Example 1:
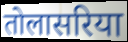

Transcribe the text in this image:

तोलासरिया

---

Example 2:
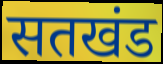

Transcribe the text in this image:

सतखंड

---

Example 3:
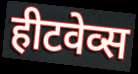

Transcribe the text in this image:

हीटवेव्स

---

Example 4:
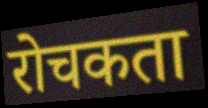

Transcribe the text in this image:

रोचकता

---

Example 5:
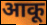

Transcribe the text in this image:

आकू